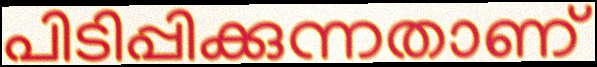
പിടിപ്പിക്കുന്നതാണ്